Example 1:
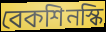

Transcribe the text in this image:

বেকশিনস্কি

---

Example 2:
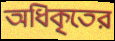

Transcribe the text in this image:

অধিকৃতের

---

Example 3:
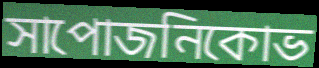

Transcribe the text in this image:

সাপোজনিকোভ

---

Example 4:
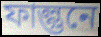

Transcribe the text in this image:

ফাল্গুনে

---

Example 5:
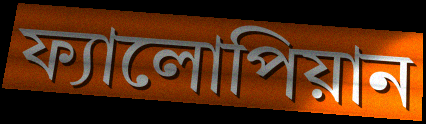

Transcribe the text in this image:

ফ্যালোপিয়ান